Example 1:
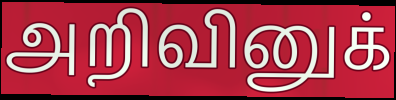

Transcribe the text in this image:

அறிவினுக்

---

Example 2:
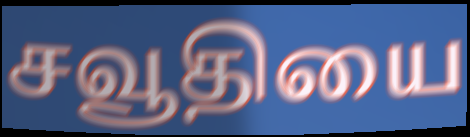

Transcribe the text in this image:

சவூதியை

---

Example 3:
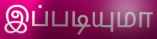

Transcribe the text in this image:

இப்படியுமா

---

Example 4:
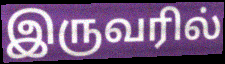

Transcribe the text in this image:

இருவரில்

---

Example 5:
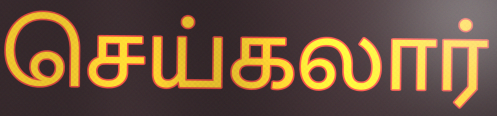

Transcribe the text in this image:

செய்கலார்